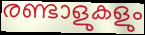
രണ്ടാളുകളും